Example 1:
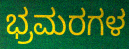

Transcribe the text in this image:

ಭ್ರಮರಗಳ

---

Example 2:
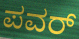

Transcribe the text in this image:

ಪವರ್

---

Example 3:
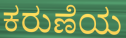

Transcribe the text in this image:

ಕರುಣೆಯ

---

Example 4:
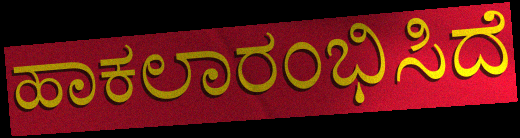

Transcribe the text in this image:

ಹಾಕಲಾರಂಭಿಸಿದೆ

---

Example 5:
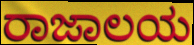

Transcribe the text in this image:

ರಾಜಾಲಯ